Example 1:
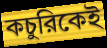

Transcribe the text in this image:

কচুরিকেই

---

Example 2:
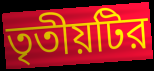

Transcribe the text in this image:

তৃতীয়টির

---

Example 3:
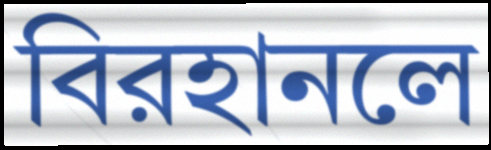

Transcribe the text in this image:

বিরহানলে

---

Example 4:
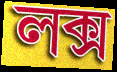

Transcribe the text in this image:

লক্স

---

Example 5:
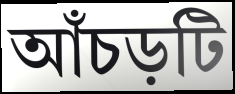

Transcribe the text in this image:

আঁচড়টি